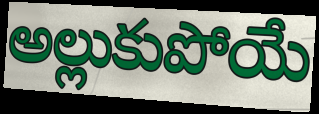
అల్లుకుపోయే